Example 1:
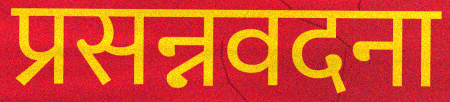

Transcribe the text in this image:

प्रसन्नवदना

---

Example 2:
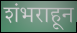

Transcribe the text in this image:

शंभराहून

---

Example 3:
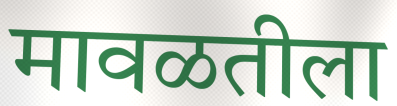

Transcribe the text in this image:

मावळतीला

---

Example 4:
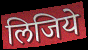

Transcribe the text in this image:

लिजिये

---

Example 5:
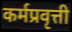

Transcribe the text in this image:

कर्मप्रवृत्ती